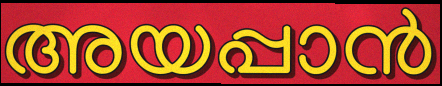
അയപ്പാൻ